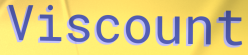
Viscount